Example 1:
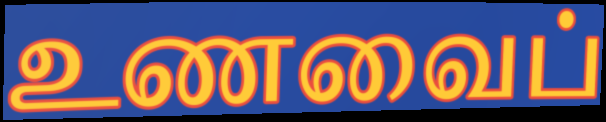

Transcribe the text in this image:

உணவைப்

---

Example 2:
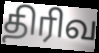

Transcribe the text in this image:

திரிவ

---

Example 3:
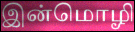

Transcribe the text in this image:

இன்மொழி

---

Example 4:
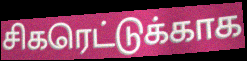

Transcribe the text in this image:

சிகரெட்டுக்காக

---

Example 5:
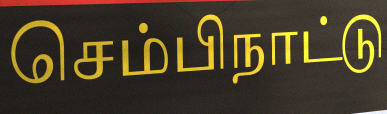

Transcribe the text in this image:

செம்பிநாட்டு